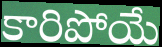
కారిపోయే